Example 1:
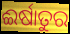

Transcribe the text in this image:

ଈର୍ଷାତୁର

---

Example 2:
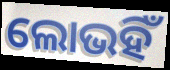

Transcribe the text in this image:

ଲୋଭହିଁ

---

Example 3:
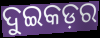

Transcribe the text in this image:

ଦୁଇକଡ଼ର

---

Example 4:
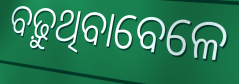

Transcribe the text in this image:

ବଢ଼ୁଥିବାବେଳେ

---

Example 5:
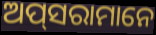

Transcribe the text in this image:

ଅପ୍‍ସରାମାନେ